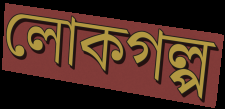
লোকগল্প